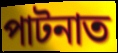
পাটনাত